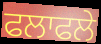
ਫਲਾਫਲੇ